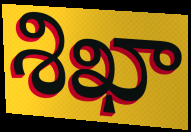
శిఖా